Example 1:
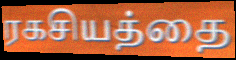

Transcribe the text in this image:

ரகசியத்தை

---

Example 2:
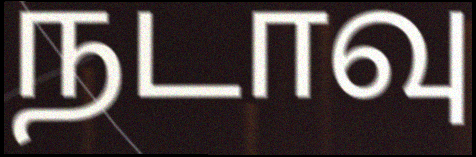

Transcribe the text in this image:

நடாவு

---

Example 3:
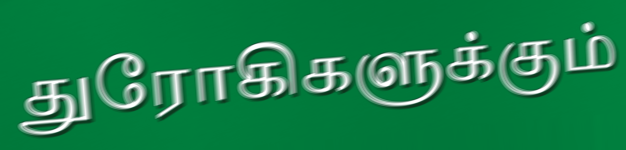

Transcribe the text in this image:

துரோகிகளுக்கும்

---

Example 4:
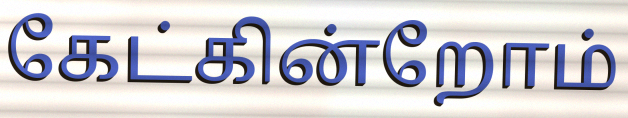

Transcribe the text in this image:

கேட்கின்றோம்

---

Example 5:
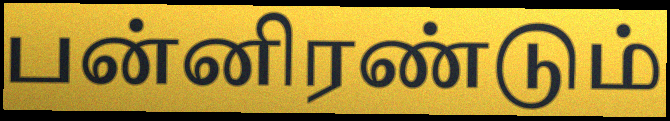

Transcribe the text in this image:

பன்னிரண்டும்